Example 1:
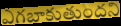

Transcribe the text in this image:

ఎగబాకుతుందని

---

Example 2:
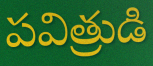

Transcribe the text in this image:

పవిత్రుడి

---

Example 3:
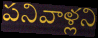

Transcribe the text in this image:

పనివాళ్లని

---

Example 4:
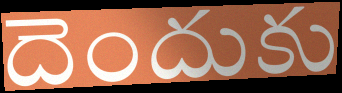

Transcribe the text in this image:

దెందుకు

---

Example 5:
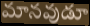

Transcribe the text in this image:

మానవుడూ